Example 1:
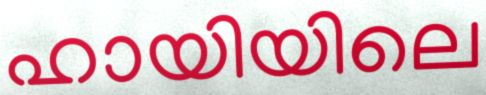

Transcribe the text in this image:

ഹായിയിലെ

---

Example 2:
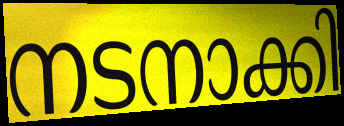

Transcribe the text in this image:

നടനാക്കി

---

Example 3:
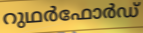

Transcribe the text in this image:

റുഥർഫോർഡ്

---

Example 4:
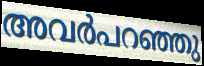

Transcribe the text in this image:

അവർപറഞ്ഞു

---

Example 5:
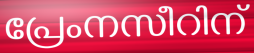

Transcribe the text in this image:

പ്രേംനസീറിന്